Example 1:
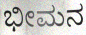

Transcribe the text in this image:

ಭೀಮನ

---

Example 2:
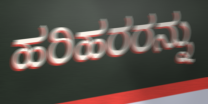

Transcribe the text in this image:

ಹರಿಹರರನ್ನು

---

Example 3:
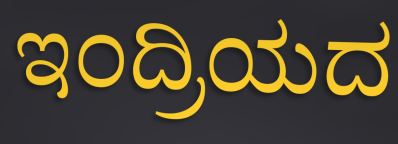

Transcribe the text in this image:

ಇಂದ್ರಿಯದ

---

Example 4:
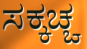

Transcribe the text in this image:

ಸಕ್ಕಚ್ಚ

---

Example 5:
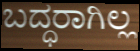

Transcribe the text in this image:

ಬದ್ಧರಾಗಿಲ್ಲ